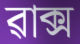
ৱাক্স